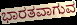
ಭಾರತವಾಗುವ